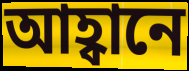
আহ্বানে